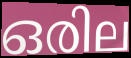
ഒരില